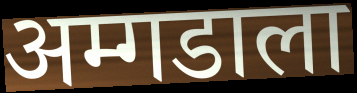
अम्गडाला